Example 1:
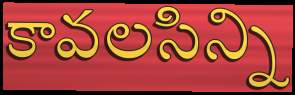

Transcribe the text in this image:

కావలసిన్ని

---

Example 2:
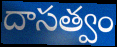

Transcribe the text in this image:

దాసత్వం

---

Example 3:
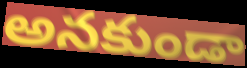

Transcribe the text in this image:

అనకుండా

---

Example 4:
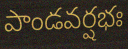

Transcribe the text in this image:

పాండవర్షభః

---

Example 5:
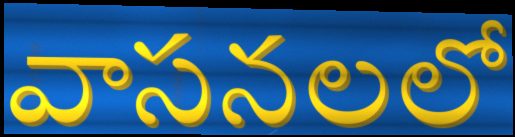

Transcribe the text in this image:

వాసనలలో